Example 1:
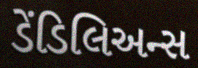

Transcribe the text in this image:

ડેંડિલિઅન્સ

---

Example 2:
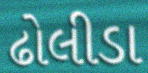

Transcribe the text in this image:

ઢોલીડા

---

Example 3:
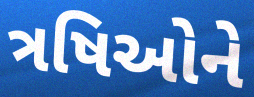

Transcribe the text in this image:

ત્રષિઓને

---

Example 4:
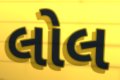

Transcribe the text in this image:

લોલ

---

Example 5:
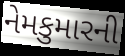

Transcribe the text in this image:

નેમકુમારની